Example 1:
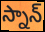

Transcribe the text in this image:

స్నాన్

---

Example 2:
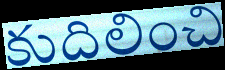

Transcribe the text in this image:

కుదిలించి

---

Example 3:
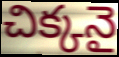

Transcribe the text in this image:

చిక్కనై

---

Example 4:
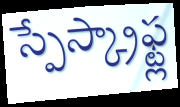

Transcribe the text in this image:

స్పేస్క్రాఫ్ట్ల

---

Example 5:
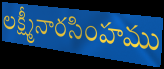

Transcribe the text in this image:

లక్ష్మీనారసింహము